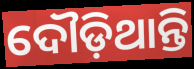
ଦୌଡ଼ିଥାନ୍ତି